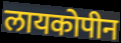
लायकोपीन